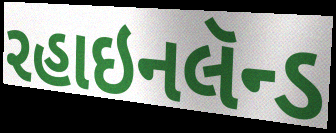
રહાઇનલૅન્ડ